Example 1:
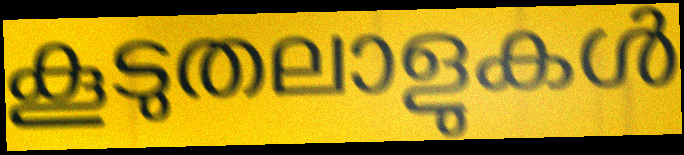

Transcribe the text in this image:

കൂടുതലാളുകൾ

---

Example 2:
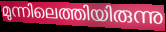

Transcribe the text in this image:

മുന്നിലെത്തിയിരുന്നു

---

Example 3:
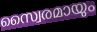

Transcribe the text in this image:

സ്വൈരമായും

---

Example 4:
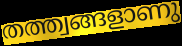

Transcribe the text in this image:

തത്ത്വങ്ങളാണു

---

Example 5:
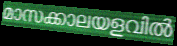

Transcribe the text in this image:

മാസക്കാലയളവിൽ